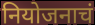
नियोजनाचं